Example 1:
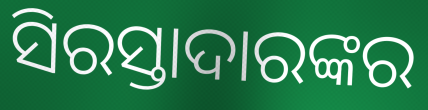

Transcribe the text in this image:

ସିରସ୍ତାଦାରଙ୍କର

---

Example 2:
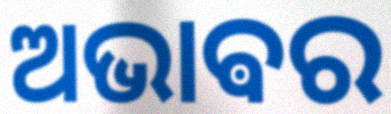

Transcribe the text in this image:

ଅଭାଵର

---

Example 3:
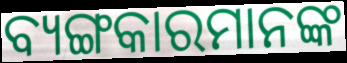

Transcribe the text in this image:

ବ୍ୟଙ୍ଗକାରମାନଙ୍କ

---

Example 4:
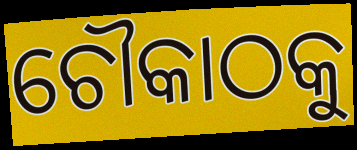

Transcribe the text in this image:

ଚୌକାଠକୁ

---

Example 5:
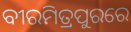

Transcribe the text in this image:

ବୀରମିତ୍ରପୁରରେ